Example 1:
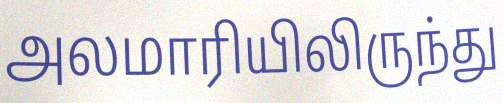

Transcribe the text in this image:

அலமாரியிலிருந்து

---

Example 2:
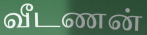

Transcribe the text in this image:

வீடணன்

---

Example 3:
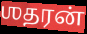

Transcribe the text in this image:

ஶதரன்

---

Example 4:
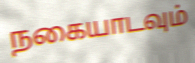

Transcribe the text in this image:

நகையாடவும்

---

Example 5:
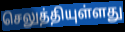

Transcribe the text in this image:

செலுத்தியுள்ளது